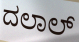
ದಲಾಲ್